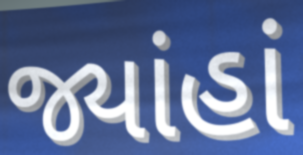
જ્યાંહાં